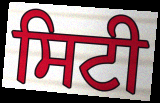
ਸਿਟੀ